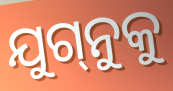
ଯୁଗ୍‌ନୁକୁ